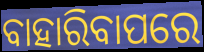
ବାହାରିବାପରେ